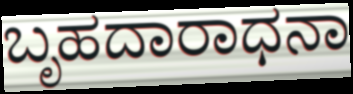
ಬೃಹದಾರಾಧನಾ